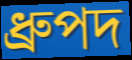
ধ্ৰুপদ